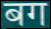
बग